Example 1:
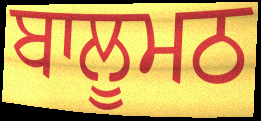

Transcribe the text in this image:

ਬਾਲੂਮਠ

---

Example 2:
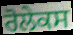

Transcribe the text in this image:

ਰੋਲੇਕਸ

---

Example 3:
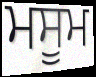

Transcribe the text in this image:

ਮਸੂਮ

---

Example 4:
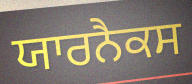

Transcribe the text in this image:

ਯਾਰਨੈਕਸ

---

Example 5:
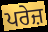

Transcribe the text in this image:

ਪਰੇਜ਼